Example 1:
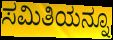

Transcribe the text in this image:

ಸಮಿತಿಯನ್ನೂ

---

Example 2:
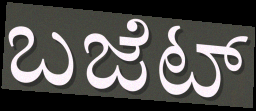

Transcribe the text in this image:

ಬಜೆಟ್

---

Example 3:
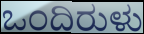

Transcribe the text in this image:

ಒಂದಿರುಳು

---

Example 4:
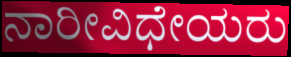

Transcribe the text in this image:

ನಾರೀವಿಧೇಯರು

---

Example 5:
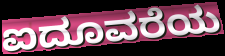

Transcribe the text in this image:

ಐದೂವರೆಯ